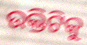
ଉକ୍ତିଟିକୁ